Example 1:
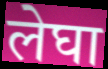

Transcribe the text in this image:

लेघा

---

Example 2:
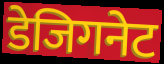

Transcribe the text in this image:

डेजिगनेट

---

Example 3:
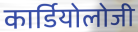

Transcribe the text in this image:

कार्डियोलोजी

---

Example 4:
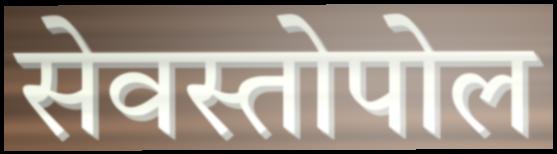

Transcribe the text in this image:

सेवस्तोपोल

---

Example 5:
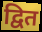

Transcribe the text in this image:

द्वित